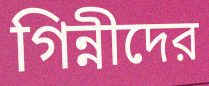
গিন্নীদের